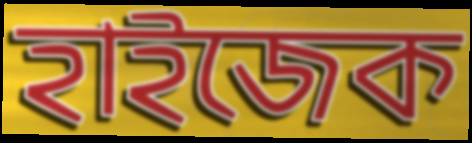
হাইজেক